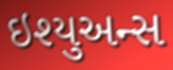
ઇશ્યુઅન્સ